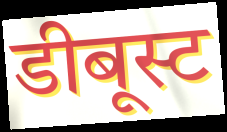
डीबूस्ट